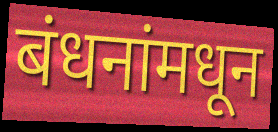
बंधनांमधून